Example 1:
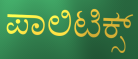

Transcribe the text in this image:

ಪಾಲಿಟಿಕ್ಸ್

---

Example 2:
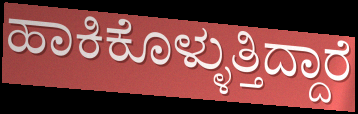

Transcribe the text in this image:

ಹಾಕಿಕೊಳ್ಳುತ್ತಿದ್ದಾರೆ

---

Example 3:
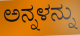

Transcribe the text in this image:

ಅನ್ನಳನ್ನು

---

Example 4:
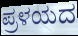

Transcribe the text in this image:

ಪ್ರಳಯದ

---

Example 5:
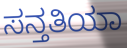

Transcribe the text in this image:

ಸನ್ತತಿಯಾ